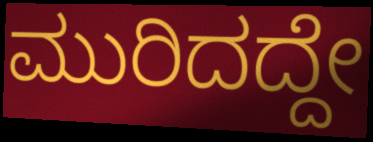
ಮುರಿದದ್ದೇ